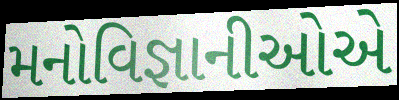
મનોવિજ્ઞાનીઓએ